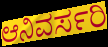
ಆನಿವರ್ಸರಿ